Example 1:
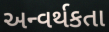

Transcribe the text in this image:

અન્વર્થકતા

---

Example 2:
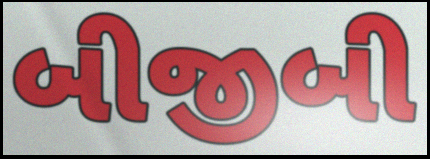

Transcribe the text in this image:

બીજીબી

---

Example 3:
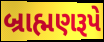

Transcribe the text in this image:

બ્રાહ્મણરૂપે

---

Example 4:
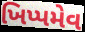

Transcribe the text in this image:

ખિપ્પમેવ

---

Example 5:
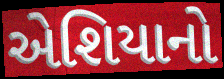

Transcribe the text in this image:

એશિયાનો